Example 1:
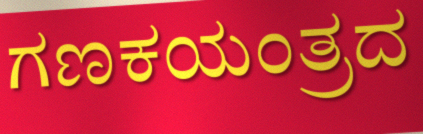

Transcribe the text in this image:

ಗಣಕಯಂತ್ರದ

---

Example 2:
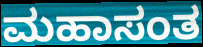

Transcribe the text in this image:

ಮಹಾಸಂತ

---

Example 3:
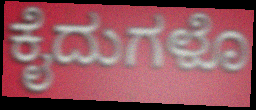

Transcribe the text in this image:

ಕೈದುಗಳೊ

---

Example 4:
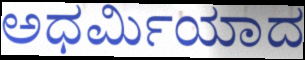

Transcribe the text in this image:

ಅಧರ್ಮಿಯಾದ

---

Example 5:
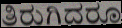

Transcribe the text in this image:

ತಿರುಗಿದರೂ